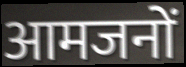
आमजनों